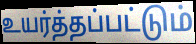
உயர்த்தப்பட்டும்